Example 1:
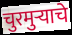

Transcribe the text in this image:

चुरमुऱ्याचे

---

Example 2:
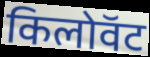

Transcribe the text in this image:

किलोवॅट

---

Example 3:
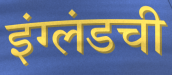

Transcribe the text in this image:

इंग्लंडची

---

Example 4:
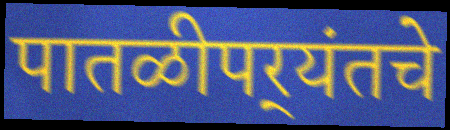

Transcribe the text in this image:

पातळीपर्यंतचे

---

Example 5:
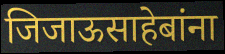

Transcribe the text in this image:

जिजाऊसाहेबांना